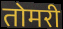
तोमरी